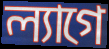
ল্যাগে